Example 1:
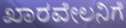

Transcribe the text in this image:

ಖಾರವೇಲನಿಗೆ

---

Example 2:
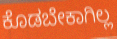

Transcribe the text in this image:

ಕೊಡಬೇಕಾಗಿಲ್ಲ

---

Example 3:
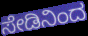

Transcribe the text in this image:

ಸೇಡಿನಿಂದ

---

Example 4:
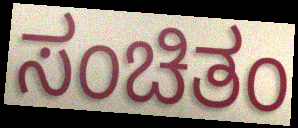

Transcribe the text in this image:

ಸಂಚಿತಂ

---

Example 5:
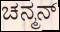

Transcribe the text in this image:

ಚನ್ಮನ್